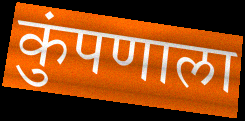
कुंपणाला